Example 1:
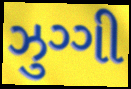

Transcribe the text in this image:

ઝુગ્ગી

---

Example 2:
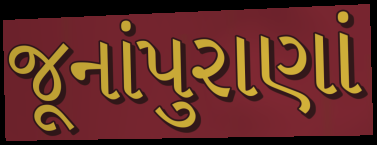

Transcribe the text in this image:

જૂનાંપુરાણાં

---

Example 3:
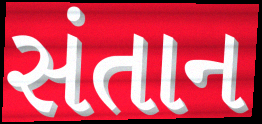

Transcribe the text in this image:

સંતાન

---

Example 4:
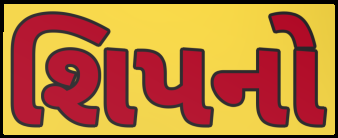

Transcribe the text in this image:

શિપનો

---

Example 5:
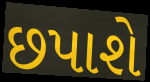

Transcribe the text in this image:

છપાશે